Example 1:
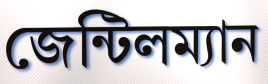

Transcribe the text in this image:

জেন্টিলম্যান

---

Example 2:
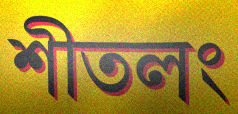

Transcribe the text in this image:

শীতলং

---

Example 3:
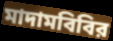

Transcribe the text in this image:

মাদামবিবির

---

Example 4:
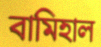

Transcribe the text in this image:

বামিহাল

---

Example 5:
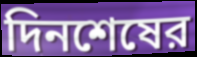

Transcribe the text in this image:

দিনশেষের